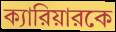
ক্যারিয়ারকে